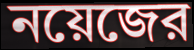
নয়েজের